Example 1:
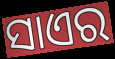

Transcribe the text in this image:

ସାଏର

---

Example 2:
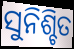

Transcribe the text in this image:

ସୁନିଶ୍ଚିତ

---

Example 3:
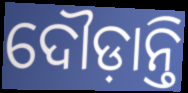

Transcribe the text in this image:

ଦୌଡ଼ାନ୍ତି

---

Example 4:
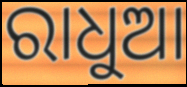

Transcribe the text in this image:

ରାଧୁଆ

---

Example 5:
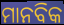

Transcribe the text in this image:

ମାନବିକ